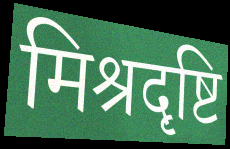
मिश्रदृष्टि